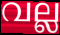
വല്ല